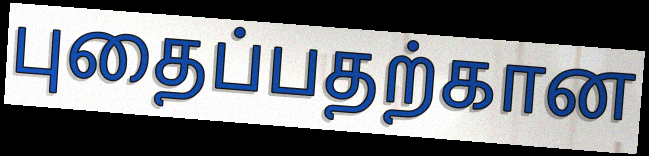
புதைப்பதற்கான